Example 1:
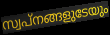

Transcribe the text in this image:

സ്വപ്നങ്ങളുടേയും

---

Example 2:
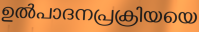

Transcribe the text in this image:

ഉൽപാദനപ്രക്രിയയെ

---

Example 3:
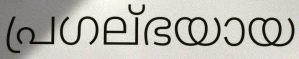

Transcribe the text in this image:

പ്രഗല്ഭയായ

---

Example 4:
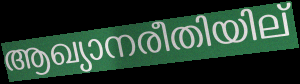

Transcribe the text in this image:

ആഖ്യാനരീതിയില്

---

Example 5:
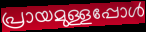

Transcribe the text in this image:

പ്രായമുള്ളപ്പോൾ